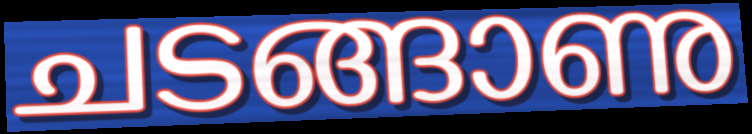
ചടങ്ങാണു